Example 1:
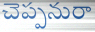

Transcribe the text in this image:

చెప్పనురా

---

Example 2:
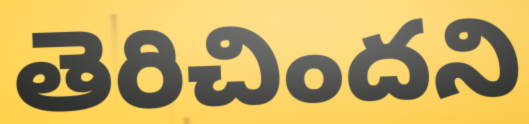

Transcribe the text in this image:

తెరిచిందని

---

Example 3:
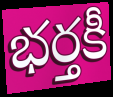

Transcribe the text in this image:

భర్తకీ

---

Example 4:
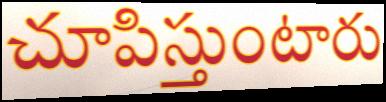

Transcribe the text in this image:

చూపిస్తుంటారు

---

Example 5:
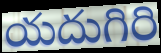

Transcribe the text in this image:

యదుగిరి